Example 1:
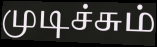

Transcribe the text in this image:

முடிச்சும்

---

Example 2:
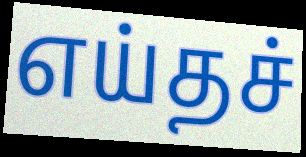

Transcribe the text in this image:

எய்தச்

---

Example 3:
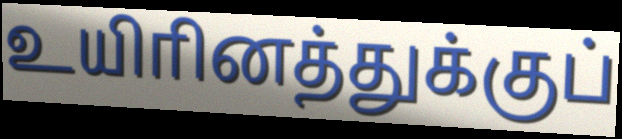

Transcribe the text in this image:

உயிரினத்துக்குப்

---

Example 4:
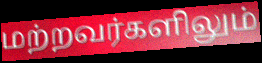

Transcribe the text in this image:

மற்றவர்களிலும்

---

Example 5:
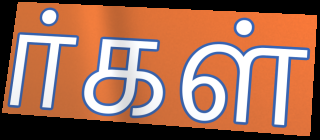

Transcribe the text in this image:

ர்கள்